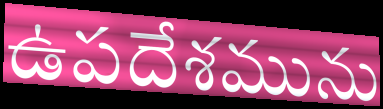
ఉపదేశమును